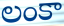
లంకా